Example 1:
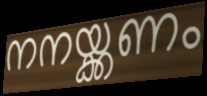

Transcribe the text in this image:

നനയ്ക്കണം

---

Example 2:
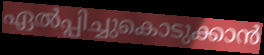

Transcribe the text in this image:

ഏൽപ്പിച്ചുകൊടുക്കാൻ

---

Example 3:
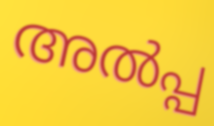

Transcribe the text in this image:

അൽപ്പ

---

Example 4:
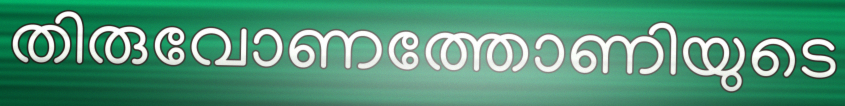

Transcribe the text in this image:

തിരുവോണത്തോണിയുടെ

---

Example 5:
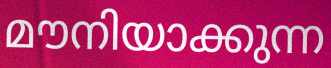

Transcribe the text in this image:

മൗനിയാക്കുന്ന